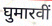
घुमारवीं